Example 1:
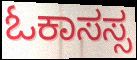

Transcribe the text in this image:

ಓಕಾಸಸ್ಸ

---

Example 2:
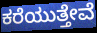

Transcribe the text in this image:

ಕರೆಯುತ್ತೇವೆ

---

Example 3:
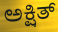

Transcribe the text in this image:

ಅಕ್ಷಿತ್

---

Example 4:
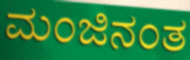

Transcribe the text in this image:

ಮಂಜಿನಂತ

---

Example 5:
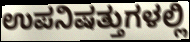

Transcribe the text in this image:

ಉಪನಿಷತ್ತುಗಳಲ್ಲಿ